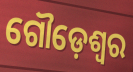
ଗୌଡ଼େଶ୍ୱର